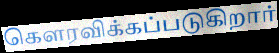
கௌரவிக்கப்படுகிறார்